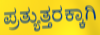
ಪ್ರತ್ಯುತ್ತರಕ್ಕಾಗಿ